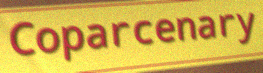
Coparcenary